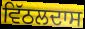
ਵਿੱਠਲਦਾਸ